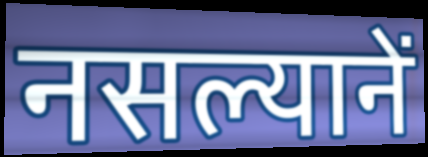
नसल्यानें